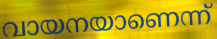
വായനയാണെന്ന്